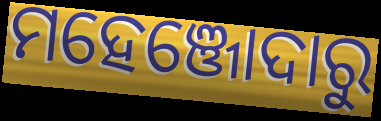
ମହେଞ୍ଜୋଦାରୁ